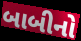
બાબીનો